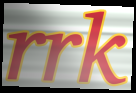
rrk